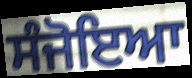
ਸੰਜੋਇਆ